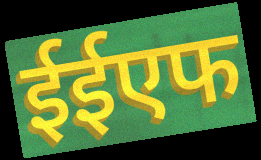
ईईएफ